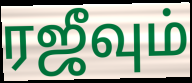
ரஜீவும்